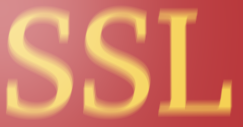
SSL